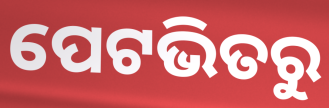
ପେଟଭିତରୁ